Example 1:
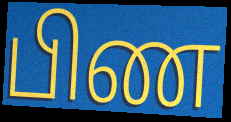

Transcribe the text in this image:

பிண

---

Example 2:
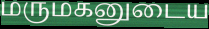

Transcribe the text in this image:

மருமகனுடைய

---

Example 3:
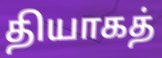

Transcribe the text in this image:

தியாகத்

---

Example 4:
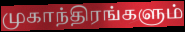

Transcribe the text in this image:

முகாந்திரங்களும்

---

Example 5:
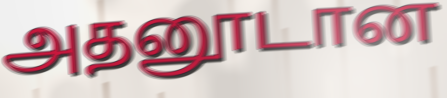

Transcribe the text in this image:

அதனூடான